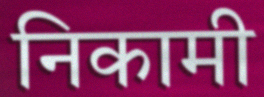
निकामी